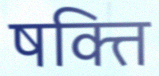
षक्ति